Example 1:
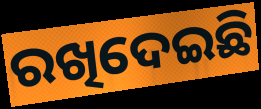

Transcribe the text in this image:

ରଖିଦେଇଛି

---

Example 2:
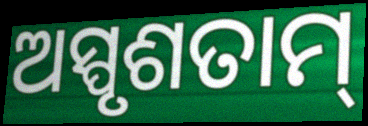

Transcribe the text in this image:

ଅସ୍ପୃଶତାମ୍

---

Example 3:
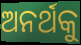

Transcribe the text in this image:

ଅନର୍ଥକୁ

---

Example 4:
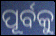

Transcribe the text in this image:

ପୂର୍ବକୁ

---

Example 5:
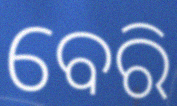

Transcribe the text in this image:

ବେରି